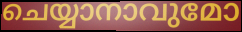
ചെയ്യാനാവുമോ